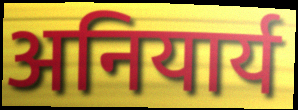
अनियार्य